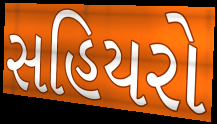
સહિયરો